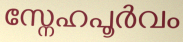
സ്നേഹപൂർവം